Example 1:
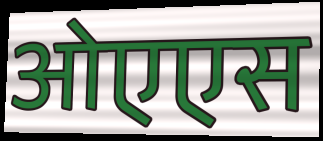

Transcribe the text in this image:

ओएएस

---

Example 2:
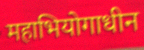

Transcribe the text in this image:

महाभियोगाधीन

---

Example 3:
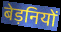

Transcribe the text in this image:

बेड़नियों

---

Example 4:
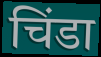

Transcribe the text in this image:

चिंडा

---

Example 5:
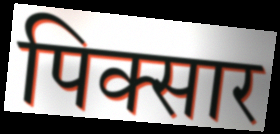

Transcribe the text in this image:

पिक्सार